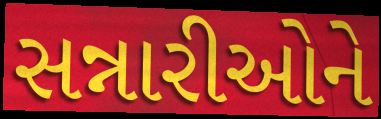
સન્નારીઓને